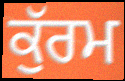
ਕੁੱਰਮ